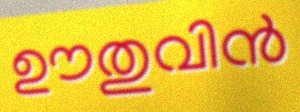
ഊതുവിൻ